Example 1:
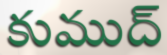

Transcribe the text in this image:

కుముద్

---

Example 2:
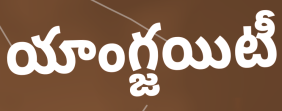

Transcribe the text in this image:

యాంగ్జయిటీ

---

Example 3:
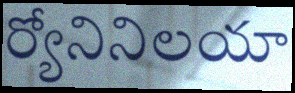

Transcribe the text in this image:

ర్యోనినిలయా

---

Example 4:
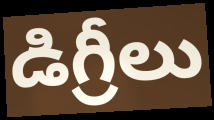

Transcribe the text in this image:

డిగ్రీలు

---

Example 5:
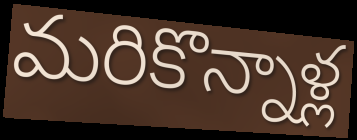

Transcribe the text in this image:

మరికొన్నాళ్ల